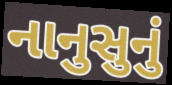
નાનુસુનું